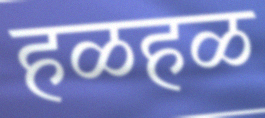
हळहळ